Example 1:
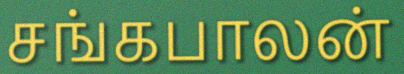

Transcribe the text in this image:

சங்கபாலன்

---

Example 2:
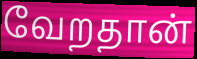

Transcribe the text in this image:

வேறதான்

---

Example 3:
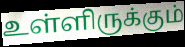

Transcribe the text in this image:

உள்ளிருக்கும்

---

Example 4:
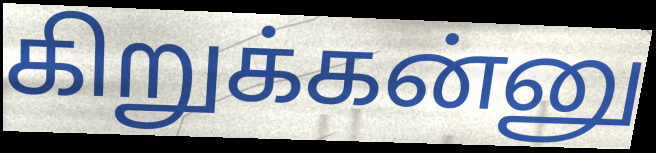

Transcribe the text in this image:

கிறுக்கன்னு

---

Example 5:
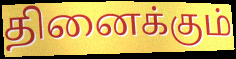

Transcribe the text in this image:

தினைக்கும்